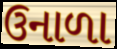
ઉનાળા